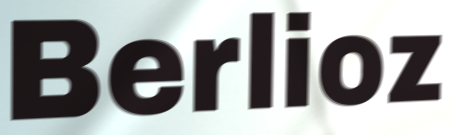
Berlioz